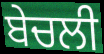
ਬੇਚਲੀ